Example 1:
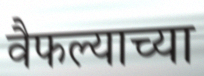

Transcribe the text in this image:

वैफल्याच्या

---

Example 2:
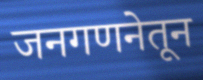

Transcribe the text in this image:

जनगणनेतून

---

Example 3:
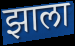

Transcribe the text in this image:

झाला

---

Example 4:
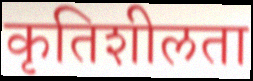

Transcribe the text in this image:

कृतिशीलता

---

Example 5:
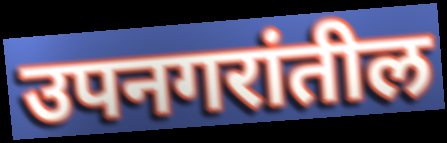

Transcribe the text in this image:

उपनगरांतील